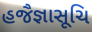
હજૈજ્ઞાસૂચિ